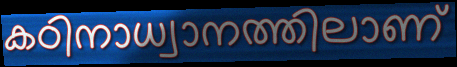
കഠിനാധ്വാനത്തിലാണ്